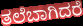
ತಲೆಬಾಗಿದರೆ